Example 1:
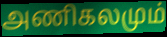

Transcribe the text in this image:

அணிகலமும்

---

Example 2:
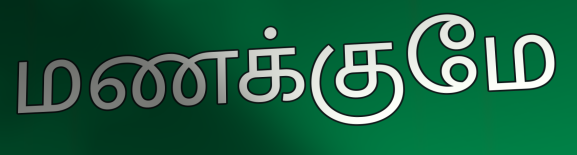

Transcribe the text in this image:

மணக்குமே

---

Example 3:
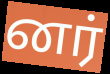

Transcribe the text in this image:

னர்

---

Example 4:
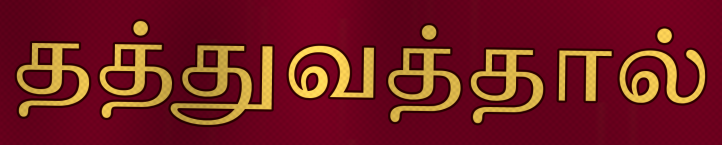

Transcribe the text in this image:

தத்துவத்தால்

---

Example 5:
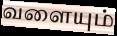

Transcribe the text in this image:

வளையும்